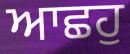
ਆਛਹੁ